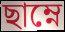
ছাম্নে